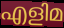
എളിമ